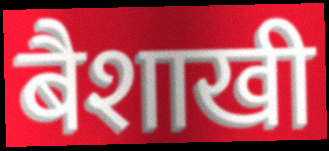
बैशाखी